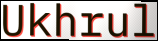
Ukhrul